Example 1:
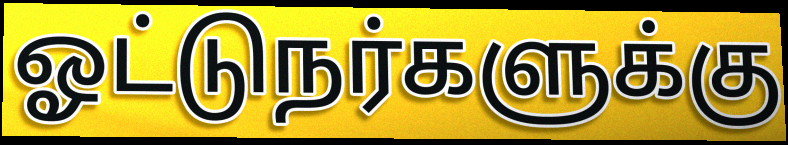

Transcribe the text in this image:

ஓட்டுநர்களுக்கு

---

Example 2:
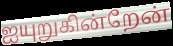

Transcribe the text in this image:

ஐயுறுகின்றேன்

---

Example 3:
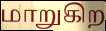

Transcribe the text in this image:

மாறுகிற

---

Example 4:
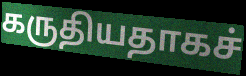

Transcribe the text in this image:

கருதியதாகச்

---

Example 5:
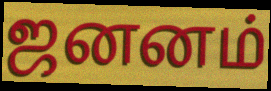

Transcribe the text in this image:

ஜனனம்